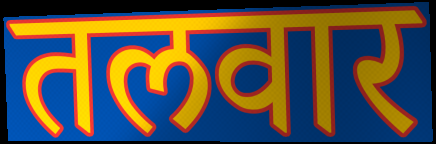
तलवार